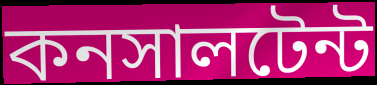
কনসালটেন্ট